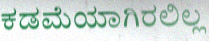
ಕಡಮೆಯಾಗಿರಲಿಲ್ಲ